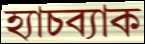
হ্যাচব্যাক